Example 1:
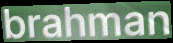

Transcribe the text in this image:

brahman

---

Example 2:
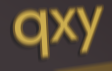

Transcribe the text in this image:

qxy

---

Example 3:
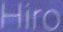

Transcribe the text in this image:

Hiro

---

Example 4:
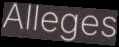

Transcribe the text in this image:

Alleges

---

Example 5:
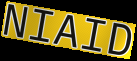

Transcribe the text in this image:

NIAID